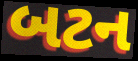
બટન